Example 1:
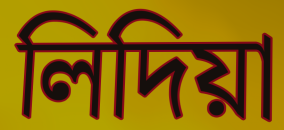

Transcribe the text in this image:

লিদিয়া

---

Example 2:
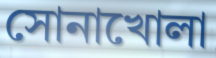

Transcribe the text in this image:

সোনাখোলা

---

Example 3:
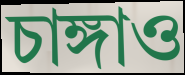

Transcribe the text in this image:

চাঙ্গাও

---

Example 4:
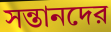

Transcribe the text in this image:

সন্তানদের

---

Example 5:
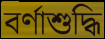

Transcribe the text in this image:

বর্ণাশুদ্ধি